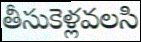
తీసుకెళ్లవలసి